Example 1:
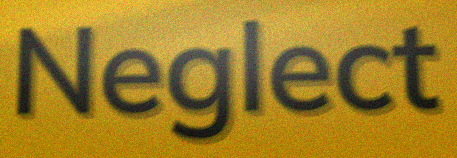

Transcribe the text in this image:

Neglect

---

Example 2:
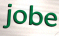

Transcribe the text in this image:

jobe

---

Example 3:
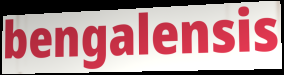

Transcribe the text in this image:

bengalensis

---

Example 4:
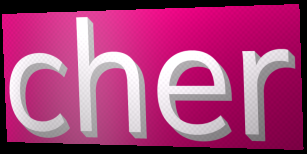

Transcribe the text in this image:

cher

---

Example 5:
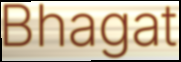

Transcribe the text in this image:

Bhagat